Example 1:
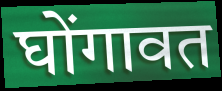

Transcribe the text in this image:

घोंगावत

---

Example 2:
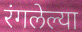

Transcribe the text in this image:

रंगलेल्या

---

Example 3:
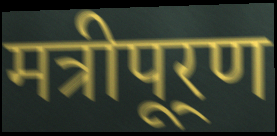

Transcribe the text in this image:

मत्रीपूर्ण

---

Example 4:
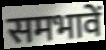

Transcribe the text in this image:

समभावें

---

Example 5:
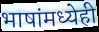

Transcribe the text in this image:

भाषांमध्येही